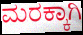
ಮರಕ್ಕಾಗಿ